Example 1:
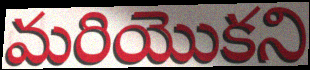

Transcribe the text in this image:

మరియొకని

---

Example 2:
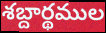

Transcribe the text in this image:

శబ్దార్థముల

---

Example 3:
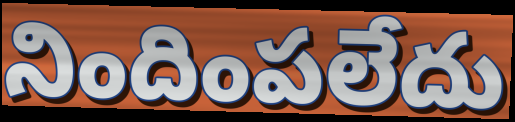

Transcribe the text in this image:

నిందింపలేదు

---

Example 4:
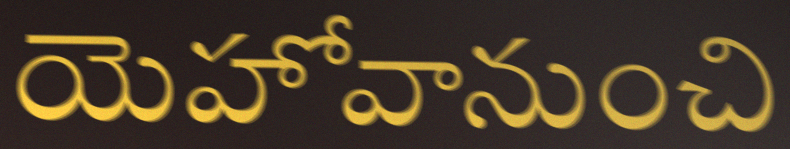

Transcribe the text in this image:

యెహోవానుంచి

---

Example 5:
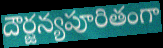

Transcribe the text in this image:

దౌర్జన్యపూరితంగా